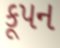
કૂપન